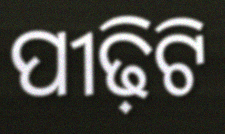
ପୀଢ଼ିଟି